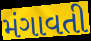
મંગાવતી